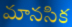
మానసిక